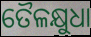
ତୈଳକ୍ଷୁଧା